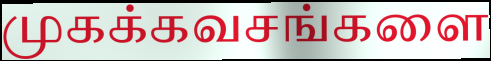
முகக்கவசங்களை